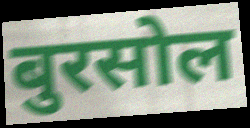
बुरसोल